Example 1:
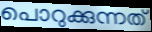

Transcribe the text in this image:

പൊറുക്കുന്നത്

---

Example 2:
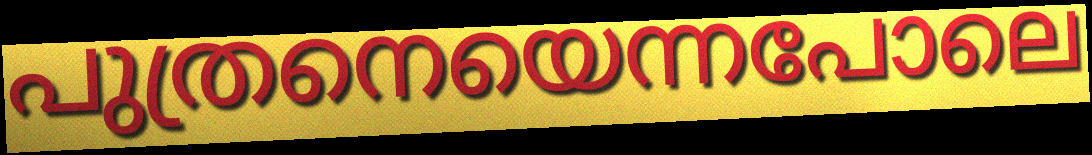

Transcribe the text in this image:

പുത്രനെയെന്നപോലെ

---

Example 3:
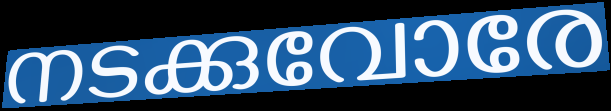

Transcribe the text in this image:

നടക്കുവോരേ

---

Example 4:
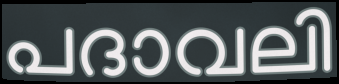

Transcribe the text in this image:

പദാവലി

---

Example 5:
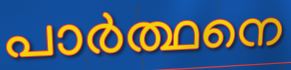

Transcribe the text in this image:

പാർത്ഥനെ